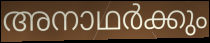
അനാഥർക്കും